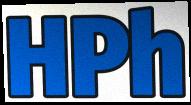
HPh